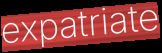
expatriate